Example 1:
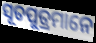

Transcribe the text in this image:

ସୂତପୁତ୍ରମାନେ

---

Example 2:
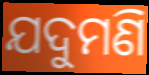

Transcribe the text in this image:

ଯଦୁମଣି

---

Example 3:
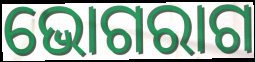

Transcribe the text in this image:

ଭୋଗରାଗ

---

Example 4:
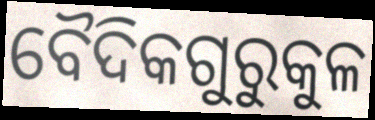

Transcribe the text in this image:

ବୈଦିକଗୁରୁକୁଳ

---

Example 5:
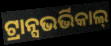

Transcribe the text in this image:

ଟ୍ରାନ୍ସଭର୍ଭିକାଲ୍